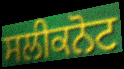
ਸਲੀਕਨੋਟ